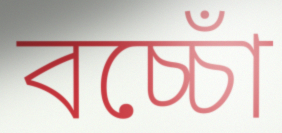
বচ্চোঁ